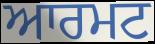
ਆਰਮਟ